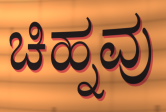
ಚಿಹ್ನವು